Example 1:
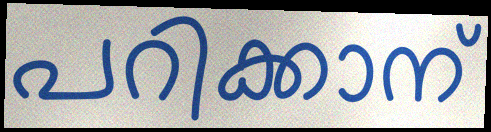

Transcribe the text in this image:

പറിക്കാന്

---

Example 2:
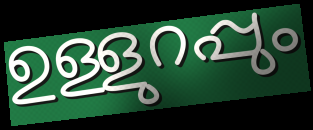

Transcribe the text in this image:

ഉള്ളുറപ്പും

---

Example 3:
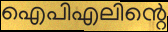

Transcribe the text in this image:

ഐപിഎലിന്റെ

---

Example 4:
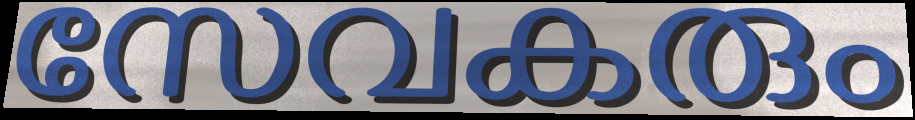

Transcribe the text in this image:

സേവകരും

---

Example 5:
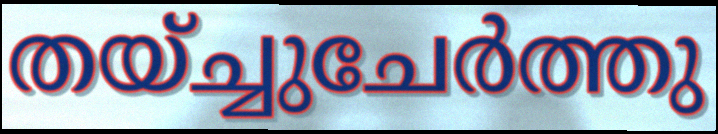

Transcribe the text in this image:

തയ്ച്ചുചേർത്തു